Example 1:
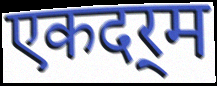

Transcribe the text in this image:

एकदर्म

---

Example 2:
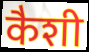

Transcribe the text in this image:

कैशी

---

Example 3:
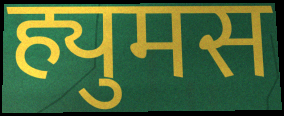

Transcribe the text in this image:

ह्युमस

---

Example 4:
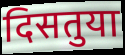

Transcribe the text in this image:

दिसतुया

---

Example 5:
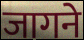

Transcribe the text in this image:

जागने